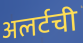
अलर्टची